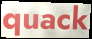
quack